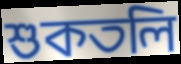
শুকতলি